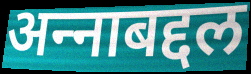
अन्‍नाबद्दल